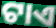
ଟାଏ